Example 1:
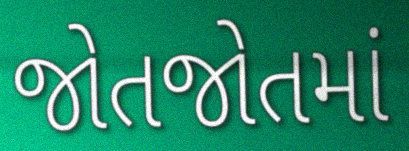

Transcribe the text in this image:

જોતજોતમાં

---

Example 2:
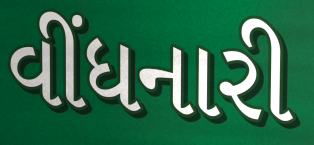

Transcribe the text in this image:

વીંધનારી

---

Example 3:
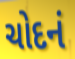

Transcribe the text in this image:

ચોદનં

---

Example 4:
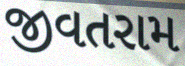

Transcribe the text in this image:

જીવતરામ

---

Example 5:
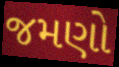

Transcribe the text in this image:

જમણો